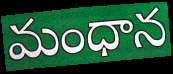
మంధాన